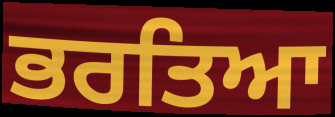
ਭਰਤਿਆ